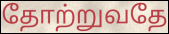
தோற்றுவதே